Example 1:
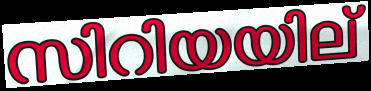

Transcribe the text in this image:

സിറിയയില്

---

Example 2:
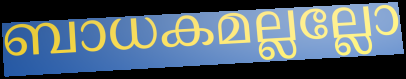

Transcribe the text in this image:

ബാധകമല്ലല്ലോ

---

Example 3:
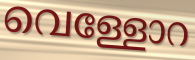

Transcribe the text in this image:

വെള്ളോറ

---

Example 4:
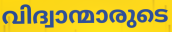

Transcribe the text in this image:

വിദ്വാന്മാരുടെ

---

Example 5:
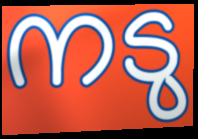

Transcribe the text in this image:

നടു